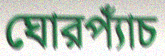
ঘোরপ্যাঁচ